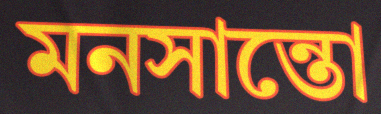
মনসান্তো